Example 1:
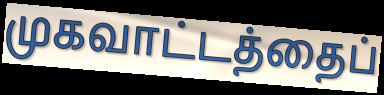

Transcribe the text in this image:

முகவாட்டத்தைப்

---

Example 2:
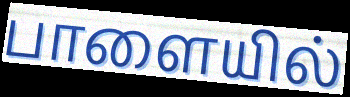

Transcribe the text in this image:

பாளையில்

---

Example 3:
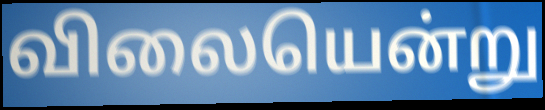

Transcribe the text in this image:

விலையென்று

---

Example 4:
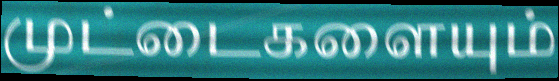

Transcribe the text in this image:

முட்டைகளையும்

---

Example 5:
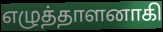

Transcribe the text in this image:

எழுத்தாளனாகி